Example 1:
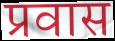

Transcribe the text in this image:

प्रवास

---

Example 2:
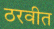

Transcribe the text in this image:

ठरवीत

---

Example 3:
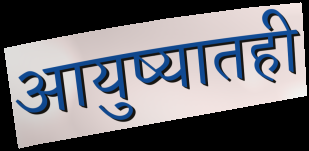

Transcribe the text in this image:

आयुष्यातही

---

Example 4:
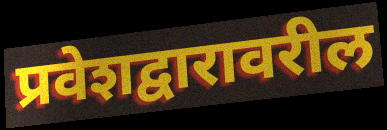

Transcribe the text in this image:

प्रवेशद्वारावरील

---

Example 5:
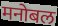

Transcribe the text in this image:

मनोबल